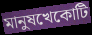
মানুষখেকোটি